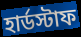
হার্ডস্টাফ